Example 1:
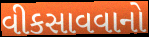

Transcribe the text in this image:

વીકસાવવાનો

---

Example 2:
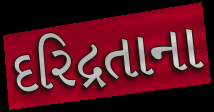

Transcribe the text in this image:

દરિદ્રતાના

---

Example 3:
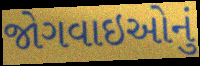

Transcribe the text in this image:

જોગવાઇઓનું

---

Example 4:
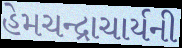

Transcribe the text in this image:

હેમચન્દ્રાચાર્યની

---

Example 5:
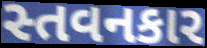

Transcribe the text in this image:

સ્તવનકાર